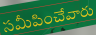
సమీపించేవారు